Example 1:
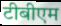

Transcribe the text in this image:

टीबीएम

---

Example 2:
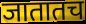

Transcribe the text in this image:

जातातच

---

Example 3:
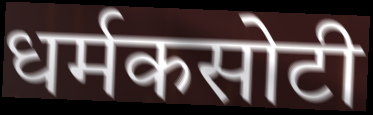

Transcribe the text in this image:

धर्मकसोटी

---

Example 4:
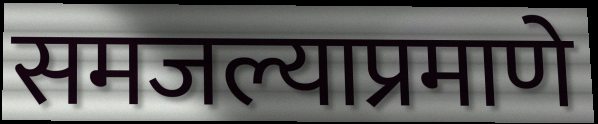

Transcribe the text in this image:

समजल्याप्रमाणे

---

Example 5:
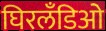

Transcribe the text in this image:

घिरलँडिओ